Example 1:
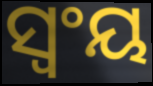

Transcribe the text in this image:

ସ୍ୱଂୟ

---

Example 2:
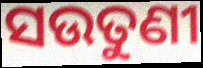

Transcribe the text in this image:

ସଉତୁଣୀ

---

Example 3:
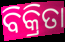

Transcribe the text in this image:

ବିକ୍ରିତା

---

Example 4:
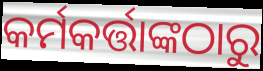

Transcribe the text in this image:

କର୍ମକର୍ତ୍ତାଙ୍କଠାରୁ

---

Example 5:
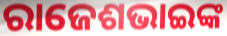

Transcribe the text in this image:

ରାଜେଶଭାଇଙ୍କ